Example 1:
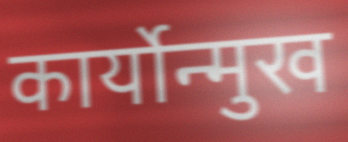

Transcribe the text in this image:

कार्योन्मुख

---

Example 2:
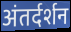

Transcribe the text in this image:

अंतर्दर्शन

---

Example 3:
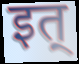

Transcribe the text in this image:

इत्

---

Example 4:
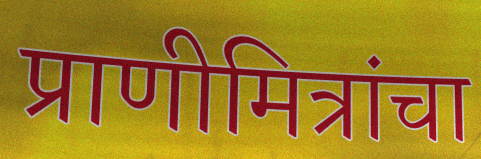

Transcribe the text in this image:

प्राणीमित्रांचा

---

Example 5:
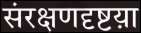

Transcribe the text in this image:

संरक्षणदृष्टय़ा